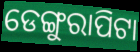
ଡେଙ୍ଗୁରାପିଟା